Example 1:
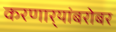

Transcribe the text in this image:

करणार्‍यांबरोबर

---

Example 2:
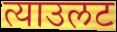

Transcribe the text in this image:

त्याउलट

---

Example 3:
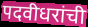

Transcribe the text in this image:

पदवीधरांची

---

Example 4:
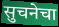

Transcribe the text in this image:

सुचनेचा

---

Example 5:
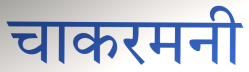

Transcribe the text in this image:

चाकरमनी